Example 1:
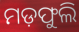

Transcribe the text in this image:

ମଡ଼ଫୁଲି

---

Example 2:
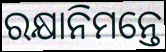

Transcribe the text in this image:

ରକ୍ଷାନିମନ୍ତେ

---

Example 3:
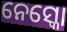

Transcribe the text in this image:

ନେସ୍କୋ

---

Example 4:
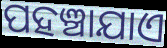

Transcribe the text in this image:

ପହଞ୍ଚାଯାଏ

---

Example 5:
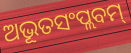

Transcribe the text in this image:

ଅଭୂତସଂପ୍ଲବମ୍